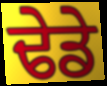
ਢੇਡੇ